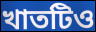
খাতটিও